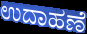
ಉದಾಹಣೆ